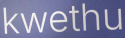
kwethu